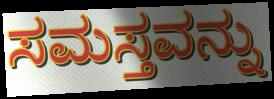
ಸಮಸ್ತವನ್ನು